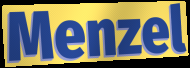
Menzel